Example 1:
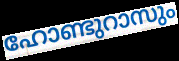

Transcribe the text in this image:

ഹോണ്ടുറാസും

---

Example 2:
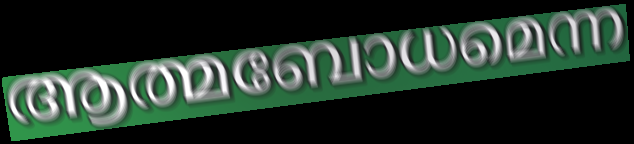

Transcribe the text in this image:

ആത്മബോധമെന്ന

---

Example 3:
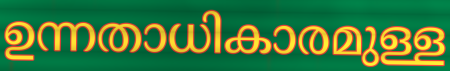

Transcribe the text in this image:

ഉന്നതാധികാരമുള്ള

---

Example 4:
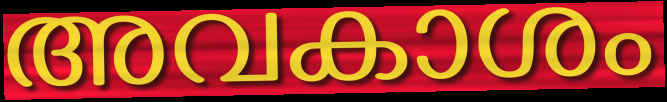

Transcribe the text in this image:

അവകാശം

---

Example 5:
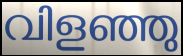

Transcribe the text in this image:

വിളഞ്ഞു